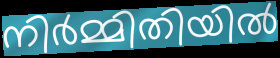
നിർമ്മിതിയിൽ